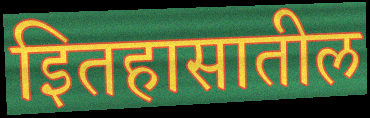
इितहासातील